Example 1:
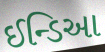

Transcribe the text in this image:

ઈન્ડિઆ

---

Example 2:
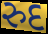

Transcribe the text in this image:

રુદ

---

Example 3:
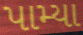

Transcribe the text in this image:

પામ્યા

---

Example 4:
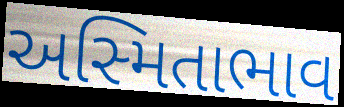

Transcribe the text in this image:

અસ્મિતાભાવ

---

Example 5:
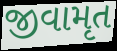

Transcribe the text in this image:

જીવામૃત